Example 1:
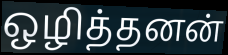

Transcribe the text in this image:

ஒழித்தனன்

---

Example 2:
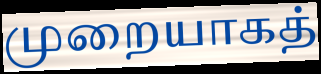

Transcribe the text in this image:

முறையாகத்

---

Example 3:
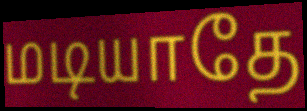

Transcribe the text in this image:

மடியாதே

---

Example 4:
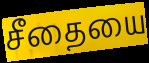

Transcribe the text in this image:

சீதையை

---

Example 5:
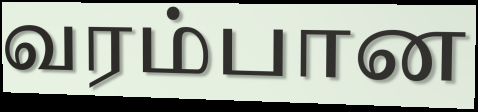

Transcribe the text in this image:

வரம்பான